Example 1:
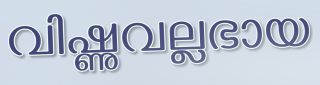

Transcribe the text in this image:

വിഷ്ണുവല്ലഭായ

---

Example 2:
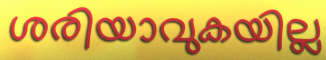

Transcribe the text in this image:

ശരിയാവുകയില്ല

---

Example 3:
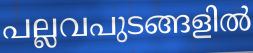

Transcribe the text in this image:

പല്ലവപുടങ്ങളിൽ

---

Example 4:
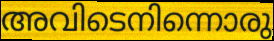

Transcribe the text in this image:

അവിടെനിന്നൊരു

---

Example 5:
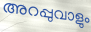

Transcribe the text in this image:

അറപ്പുവാളും